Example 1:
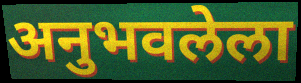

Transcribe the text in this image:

अनुभवलेला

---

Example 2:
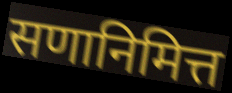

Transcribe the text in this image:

सणानिमित्त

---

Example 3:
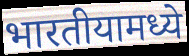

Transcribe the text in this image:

भारतीयामध्ये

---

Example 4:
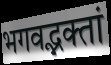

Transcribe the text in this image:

भगवद्भक्तां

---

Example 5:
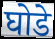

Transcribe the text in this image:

घोडे